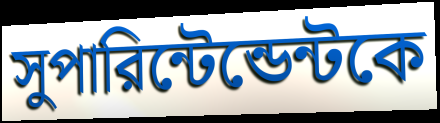
সুপারিন্টেন্ডেন্টকে